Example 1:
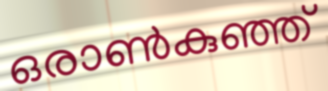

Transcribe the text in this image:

ഒരാൺകുഞ്ഞ്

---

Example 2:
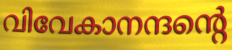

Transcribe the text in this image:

വിവേകാനന്ദന്റെ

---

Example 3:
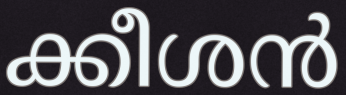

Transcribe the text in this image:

ക്കീശൻ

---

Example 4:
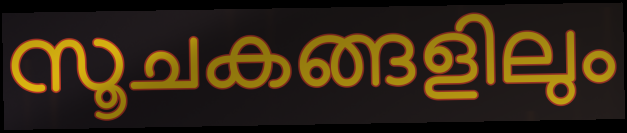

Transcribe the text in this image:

സൂചകങ്ങളിലും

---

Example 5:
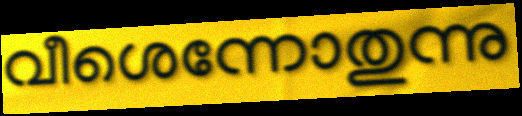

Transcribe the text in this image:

വീശെന്നോതുന്നു